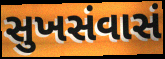
સુખસંવાસં